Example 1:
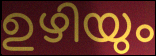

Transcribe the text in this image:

ഉഴിയും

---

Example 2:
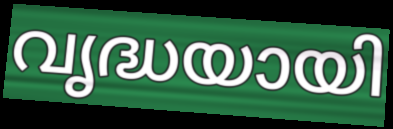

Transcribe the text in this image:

വൃദ്ധയായി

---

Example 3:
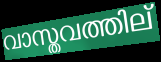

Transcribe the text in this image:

വാസ്തവത്തില്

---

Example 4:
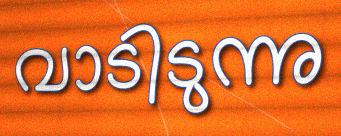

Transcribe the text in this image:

വാടിടുന്നു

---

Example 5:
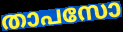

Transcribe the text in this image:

താപസോ